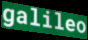
galileo